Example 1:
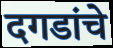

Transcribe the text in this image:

दगडांचे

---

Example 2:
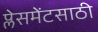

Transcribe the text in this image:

प्लेसमेंटसाठी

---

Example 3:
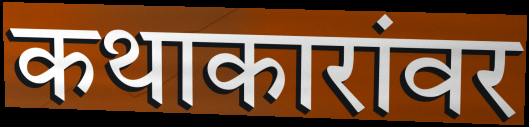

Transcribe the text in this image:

कथाकारांवर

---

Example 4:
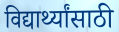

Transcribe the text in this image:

विद्यार्थ्यांसाठी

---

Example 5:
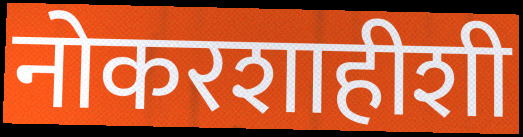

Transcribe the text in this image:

नोकरशाहीशी